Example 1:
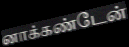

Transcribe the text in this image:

னாக்கண்டேன்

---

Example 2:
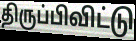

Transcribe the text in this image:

திருப்பிவிட்டு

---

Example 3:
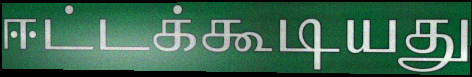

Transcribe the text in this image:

ஈட்டக்கூடியது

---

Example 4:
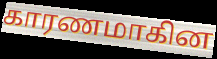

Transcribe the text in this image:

காரணமாகின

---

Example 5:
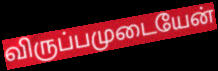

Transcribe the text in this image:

விருப்பமுடையேன்